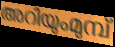
അറിയുംമുമ്പ്